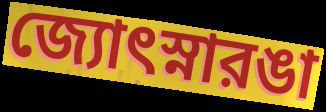
জ্যোৎস্নারঙা